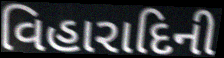
વિહારાદિની